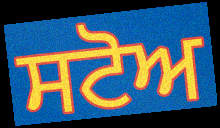
ਸਟੋਅ